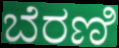
ಬೆರಣಿ